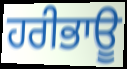
ਹਰੀਭਾਊ